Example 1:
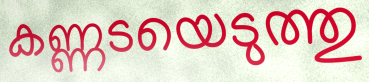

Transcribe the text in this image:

കണ്ണടയെടുത്തു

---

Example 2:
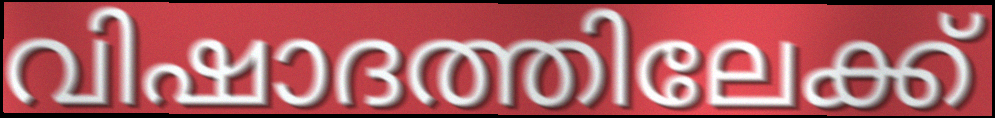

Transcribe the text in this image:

വിഷാദത്തിലേക്ക്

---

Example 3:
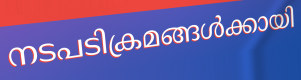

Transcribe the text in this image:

നടപടിക്രമങ്ങൾക്കായി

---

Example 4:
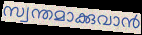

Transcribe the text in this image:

സ്വന്തമാക്കുവാൻ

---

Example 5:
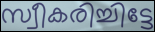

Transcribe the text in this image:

സ്വീകരിച്ചിട്ടേ